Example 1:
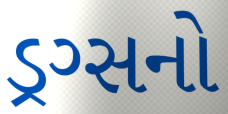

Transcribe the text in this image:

ડ્રગ્સનો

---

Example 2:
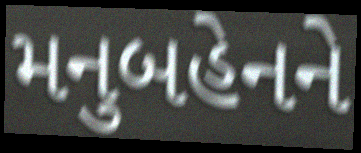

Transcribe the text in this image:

મનુબહેનને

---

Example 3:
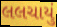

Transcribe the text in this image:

લલચાયું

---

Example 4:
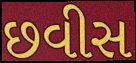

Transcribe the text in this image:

છવીસ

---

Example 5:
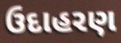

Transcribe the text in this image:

ઉદાહરણ